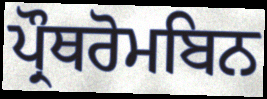
ਪ੍ਰੌਥਰੋਮਬਿਨ